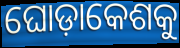
ଘୋଡ଼ାକେଶକୁ